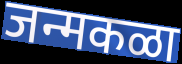
जन्मकळा